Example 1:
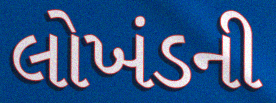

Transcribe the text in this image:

લોખંડની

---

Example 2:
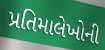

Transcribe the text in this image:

પ્રતિમાલેખોની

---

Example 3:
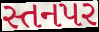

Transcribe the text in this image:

સ્તનપર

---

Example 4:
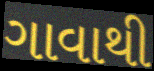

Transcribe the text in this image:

ગાવાથી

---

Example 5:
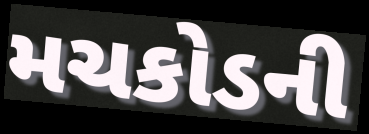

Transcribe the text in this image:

મચકોડની